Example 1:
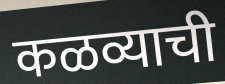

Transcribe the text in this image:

कळव्याची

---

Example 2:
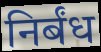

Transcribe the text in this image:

निर्बंध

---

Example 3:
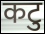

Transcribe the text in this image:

कटु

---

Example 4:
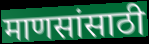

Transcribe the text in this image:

माणसांसाठी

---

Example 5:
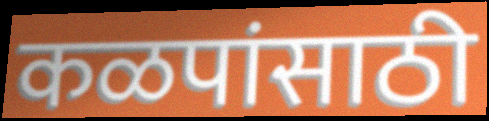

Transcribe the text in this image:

कळपांसाठी